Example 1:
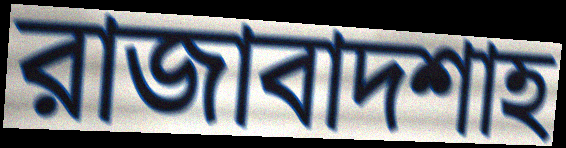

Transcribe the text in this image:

রাজাবাদশাহ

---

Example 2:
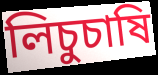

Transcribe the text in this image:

লিচুচাষি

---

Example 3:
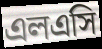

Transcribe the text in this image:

এলএসি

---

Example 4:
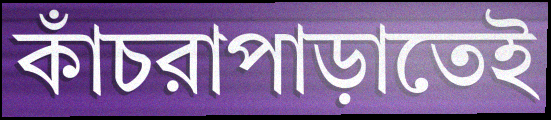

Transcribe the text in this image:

কাঁচরাপাড়াতেই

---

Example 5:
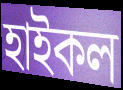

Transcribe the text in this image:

হাইকল